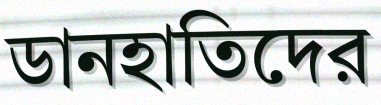
ডানহাতিদের